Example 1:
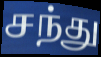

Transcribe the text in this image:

சந்து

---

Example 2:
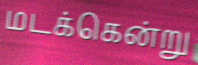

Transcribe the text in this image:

மடக்கென்று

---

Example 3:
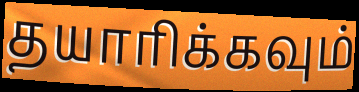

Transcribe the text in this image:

தயாரிக்கவும்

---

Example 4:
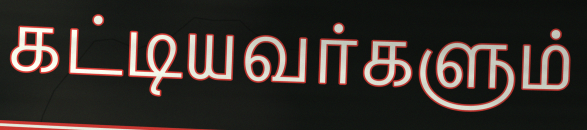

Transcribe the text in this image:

கட்டியவர்களும்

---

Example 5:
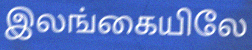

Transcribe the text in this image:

இலங்கையிலே